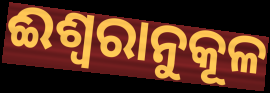
ଈଶ୍ଵରାନୁକୂଳ